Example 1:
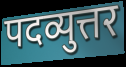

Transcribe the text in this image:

पदव्युत्तर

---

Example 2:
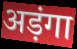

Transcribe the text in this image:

अड़ंगा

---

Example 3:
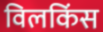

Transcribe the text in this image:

विलकिंस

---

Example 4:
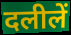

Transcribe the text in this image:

दलीलें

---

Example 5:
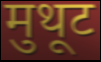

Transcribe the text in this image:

मुथूट